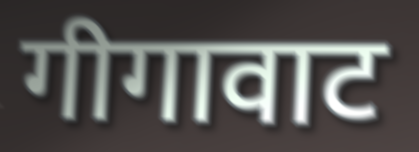
गीगावाट